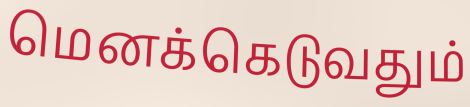
மெனக்கெடுவதும்